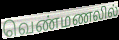
வெண்மணலில்